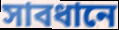
সাবধানে